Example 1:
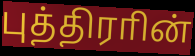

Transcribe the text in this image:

புத்திரரின்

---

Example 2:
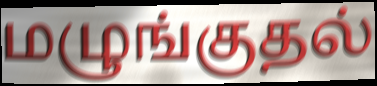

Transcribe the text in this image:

மழுங்குதல்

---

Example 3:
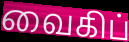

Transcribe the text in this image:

வைகிப்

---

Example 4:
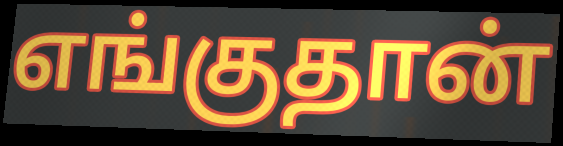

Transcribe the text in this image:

எங்குதான்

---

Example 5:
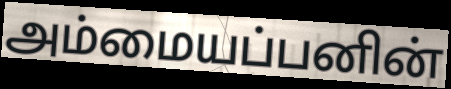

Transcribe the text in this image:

அம்மையப்பனின்